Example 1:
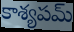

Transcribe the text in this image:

కాశ్యపమ్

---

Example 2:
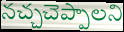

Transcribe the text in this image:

నచ్చచెప్పాలని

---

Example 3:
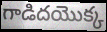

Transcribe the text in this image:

గాడిదయొక్క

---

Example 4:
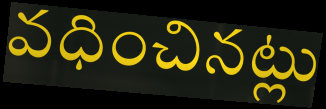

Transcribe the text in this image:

వధించినట్లు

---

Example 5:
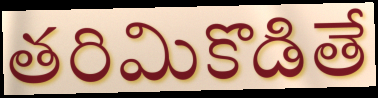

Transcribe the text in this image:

తరిమికొడితే